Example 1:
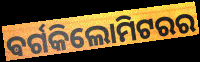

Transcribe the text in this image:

ଵର୍ଗକିଲୋମିଟରର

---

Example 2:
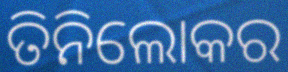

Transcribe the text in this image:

ତିନିଲୋକର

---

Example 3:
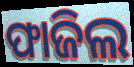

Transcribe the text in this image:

ଫାଜିଲ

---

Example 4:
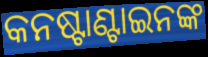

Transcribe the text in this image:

କନଷ୍ଟାଣ୍ଟାଇନଙ୍କ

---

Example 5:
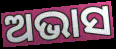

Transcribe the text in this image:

ଅଭାସ